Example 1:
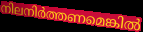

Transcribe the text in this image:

നിലനിർത്തണമെങ്കിൽ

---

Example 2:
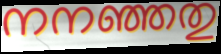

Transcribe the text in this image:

നനഞ്ഞതു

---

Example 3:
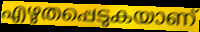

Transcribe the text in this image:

എഴുതപ്പെടുകയാണ്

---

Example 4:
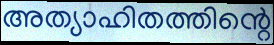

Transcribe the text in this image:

അത്യാഹിതത്തിന്റെ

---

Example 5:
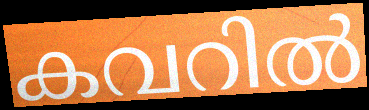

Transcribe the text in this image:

കവറിൽ